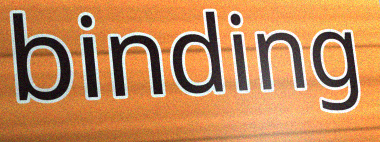
binding